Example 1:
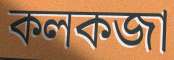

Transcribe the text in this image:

কলকজা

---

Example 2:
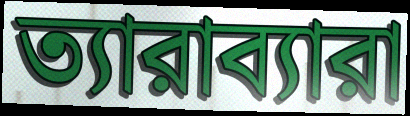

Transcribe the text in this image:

ত্যারাব্যারা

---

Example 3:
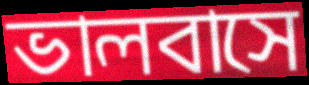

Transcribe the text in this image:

ভালবাসে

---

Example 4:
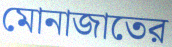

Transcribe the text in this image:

মোনাজাতের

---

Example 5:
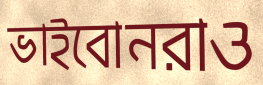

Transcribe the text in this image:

ভাইবোনরাও